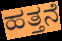
ಹತ್ತನೆ